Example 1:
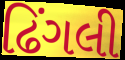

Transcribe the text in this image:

ઢિંગલી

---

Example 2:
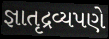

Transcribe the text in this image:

જ્ઞાતૃદ્રવ્યપણે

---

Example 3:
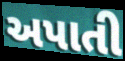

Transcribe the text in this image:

અપાતી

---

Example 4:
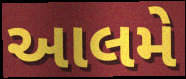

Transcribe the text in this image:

આલમે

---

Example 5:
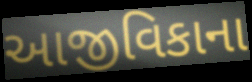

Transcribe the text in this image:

આજીવિકાના